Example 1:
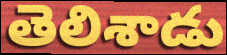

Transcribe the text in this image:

తెలిశాడు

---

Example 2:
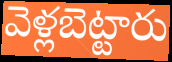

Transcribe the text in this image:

వెళ్లబెట్టారు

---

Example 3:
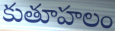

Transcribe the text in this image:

కుతూహలం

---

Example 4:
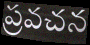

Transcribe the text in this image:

ప్రవచన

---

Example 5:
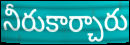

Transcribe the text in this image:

నీరుకార్చారు